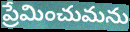
ప్రేమించుమను